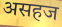
असहज